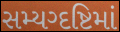
સમ્યગ્દષ્ટિમાં